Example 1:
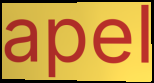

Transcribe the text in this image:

apel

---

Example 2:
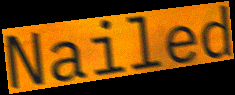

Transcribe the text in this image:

Nailed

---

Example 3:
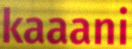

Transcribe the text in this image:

kaaani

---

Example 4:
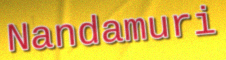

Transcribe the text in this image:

Nandamuri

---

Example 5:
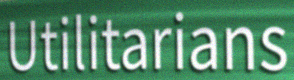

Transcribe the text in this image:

Utilitarians